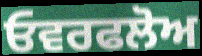
ਓਵਰਫਲੋਅ